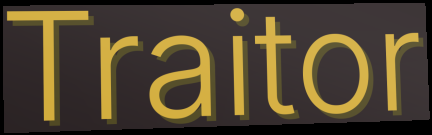
Traitor